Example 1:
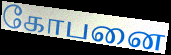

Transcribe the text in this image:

கோபனை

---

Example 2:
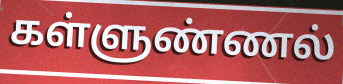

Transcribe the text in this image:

கள்ளுண்ணல்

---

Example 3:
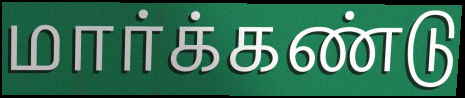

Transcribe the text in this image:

மார்க்கண்டு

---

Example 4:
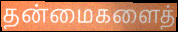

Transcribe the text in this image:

தன்மைகளைத்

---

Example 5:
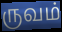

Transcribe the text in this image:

ருவம்